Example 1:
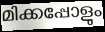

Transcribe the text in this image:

മിക്കപ്പോളും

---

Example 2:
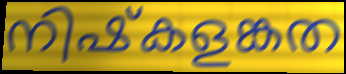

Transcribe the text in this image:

നിഷ്‌കളങ്കത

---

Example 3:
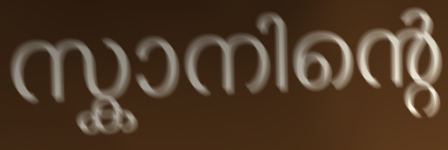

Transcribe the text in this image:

സ്കാനിന്റെ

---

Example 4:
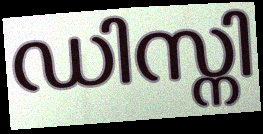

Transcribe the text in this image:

ഡിസ്നി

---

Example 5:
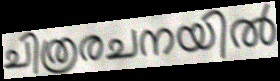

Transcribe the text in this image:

ചിത്രരചനയിൽ